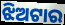
ଝିଅଟାର